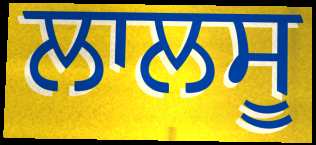
ਲਾਲਸੂ